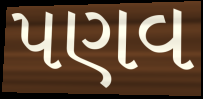
પણવ